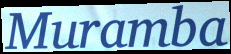
Muramba